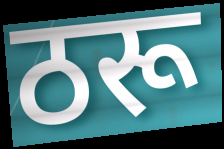
ठरू